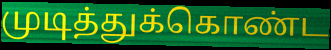
முடித்துக்கொண்ட